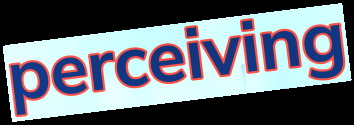
perceiving